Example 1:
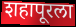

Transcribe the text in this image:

शहापूरला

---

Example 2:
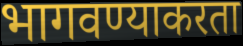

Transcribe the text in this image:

भागवण्याकरता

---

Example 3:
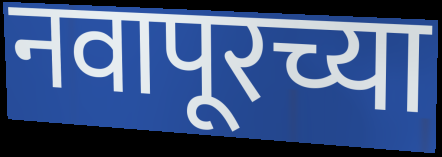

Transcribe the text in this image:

नवापूरच्या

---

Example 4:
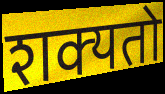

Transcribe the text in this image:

शक्‍यतो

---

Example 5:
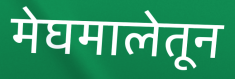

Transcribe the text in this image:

मेघमालेतून